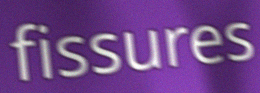
fissures